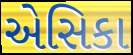
એસિકા